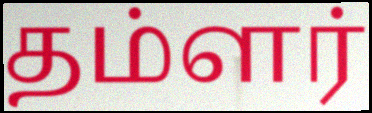
தம்ளர்